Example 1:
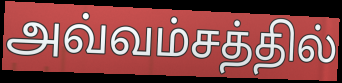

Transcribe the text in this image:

அவ்வம்சத்தில்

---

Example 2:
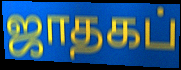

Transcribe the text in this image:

ஜாதகப்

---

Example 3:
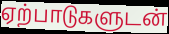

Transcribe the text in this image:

ஏற்பாடுகளுடன்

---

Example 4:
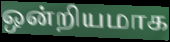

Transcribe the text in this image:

ஒன்றியமாக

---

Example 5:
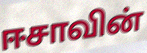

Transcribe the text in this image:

ஈசாவின்